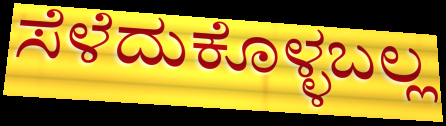
ಸೆಳೆದುಕೊಳ್ಳಬಲ್ಲ